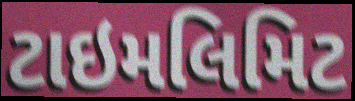
ટાઇમલિમિટ